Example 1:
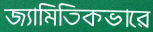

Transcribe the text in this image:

জ্যামিতিকভাৱে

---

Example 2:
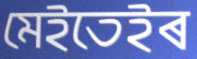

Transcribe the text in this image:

মেইতেইৰ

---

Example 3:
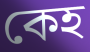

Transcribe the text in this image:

কেহ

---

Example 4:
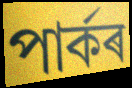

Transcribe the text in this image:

পাৰ্কৰ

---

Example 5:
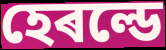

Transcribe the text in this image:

হেৰল্ডে